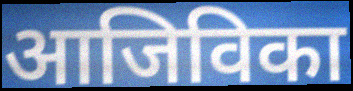
आजिविका